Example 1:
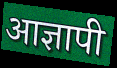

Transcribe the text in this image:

आज्ञापी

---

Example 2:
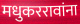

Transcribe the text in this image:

मधुकररावांना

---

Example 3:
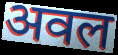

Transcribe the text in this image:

अवल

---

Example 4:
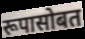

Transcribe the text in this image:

रूपासोबत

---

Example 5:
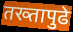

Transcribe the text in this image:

तख्तापुढे